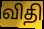
விதி